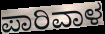
ಪಾರಿವಾಳ